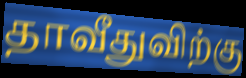
தாவீதுவிற்கு